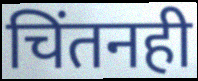
चिंतनही